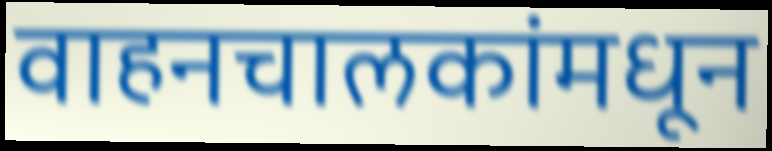
वाहनचालकांमधून